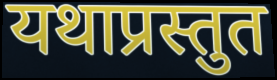
यथाप्रस्तुत